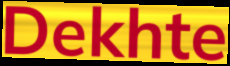
Dekhte